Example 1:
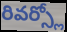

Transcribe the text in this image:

రివర్స్లో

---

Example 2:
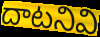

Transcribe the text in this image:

దాటనివి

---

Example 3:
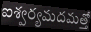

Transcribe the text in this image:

ఐశ్వర్యమదమత్తో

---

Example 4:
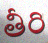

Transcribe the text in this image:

తీరి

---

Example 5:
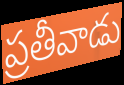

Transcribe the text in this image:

ప్రతీవాడు